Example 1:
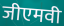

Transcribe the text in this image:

जीएमवी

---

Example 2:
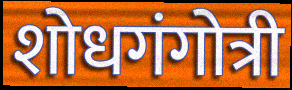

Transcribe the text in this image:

शोधगंगोत्री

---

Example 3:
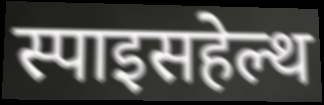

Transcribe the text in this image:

स्पाइसहेल्थ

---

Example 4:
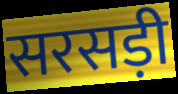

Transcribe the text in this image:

सरसड़ी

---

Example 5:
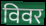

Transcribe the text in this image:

विवर